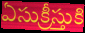
ఏసుక్రీస్తుకి